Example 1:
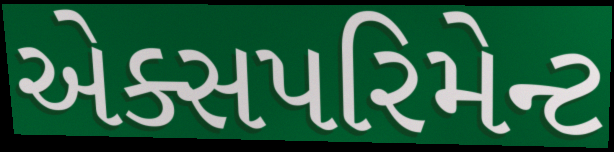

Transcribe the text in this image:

એક્સપરિમેન્ટ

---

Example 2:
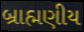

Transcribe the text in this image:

બ્રાહ્મણીય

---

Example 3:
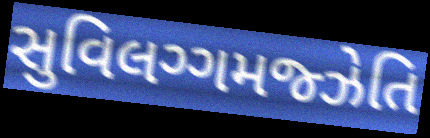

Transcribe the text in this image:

સુવિલગ્ગમજ્ઝેતિ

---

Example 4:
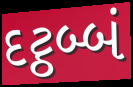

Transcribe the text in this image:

દટ્ઠબ્બં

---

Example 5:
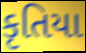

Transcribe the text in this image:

કૃતિયા